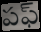
పఫ్